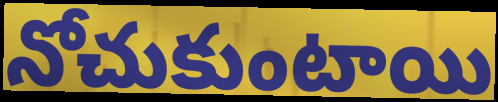
నోచుకుంటాయి